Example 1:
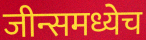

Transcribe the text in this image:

जीन्समध्येच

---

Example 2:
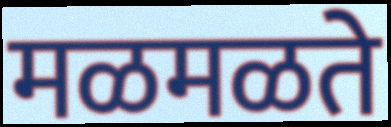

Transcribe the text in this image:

मळमळते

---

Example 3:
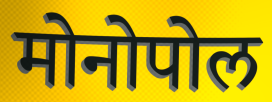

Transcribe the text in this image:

मोनोपोल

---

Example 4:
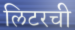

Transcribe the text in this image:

लिटरची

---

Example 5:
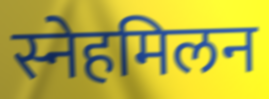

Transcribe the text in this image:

स्नेहमिलन